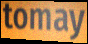
tomay